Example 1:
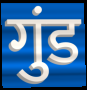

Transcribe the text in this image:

गुंड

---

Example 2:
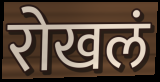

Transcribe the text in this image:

रोखलं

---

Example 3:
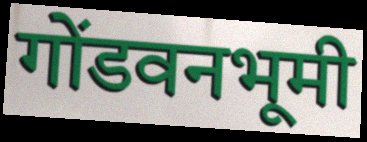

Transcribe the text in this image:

गोंडवनभूमी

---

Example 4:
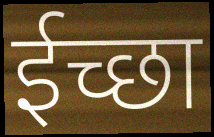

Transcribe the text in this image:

ईच्छा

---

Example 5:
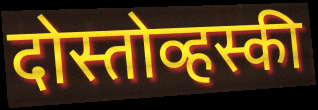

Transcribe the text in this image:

दोस्तोव्हस्की